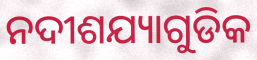
ନଦୀଶଯ୍ୟାଗୁଡିକ